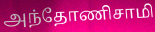
அந்தோணிசாமி